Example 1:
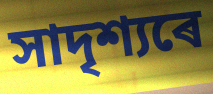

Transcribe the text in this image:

সাদৃশ্যৰে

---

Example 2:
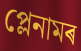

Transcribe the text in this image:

প্লেনামৰ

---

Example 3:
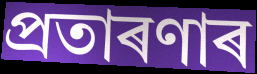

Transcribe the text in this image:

প্ৰতাৰণাৰ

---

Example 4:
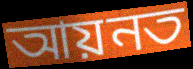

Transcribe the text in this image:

আয়নত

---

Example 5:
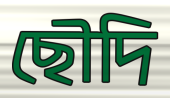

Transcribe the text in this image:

ছৌদি